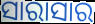
ସାରାସାର